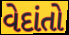
વેદાંતો